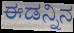
ಈಡನ್ನಿನ